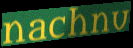
nachnu